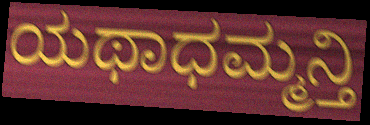
ಯಥಾಧಮ್ಮನ್ತಿ